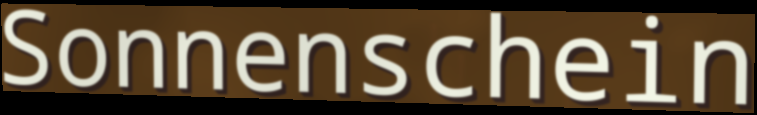
Sonnenschein